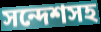
সন্দেশসহ